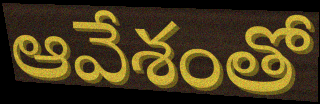
ఆవేశంతో